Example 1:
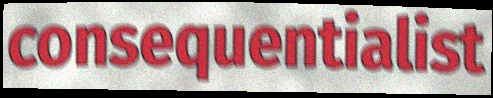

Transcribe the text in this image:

consequentialist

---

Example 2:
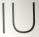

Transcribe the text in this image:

IU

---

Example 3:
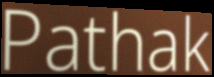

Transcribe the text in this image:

Pathak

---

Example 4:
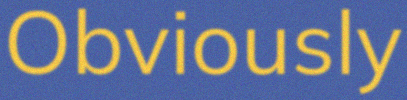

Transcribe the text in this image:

Obviously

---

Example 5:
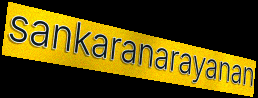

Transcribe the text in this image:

sankaranarayanan